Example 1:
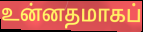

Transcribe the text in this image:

உன்னதமாகப்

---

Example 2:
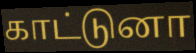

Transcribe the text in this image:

காட்டுனா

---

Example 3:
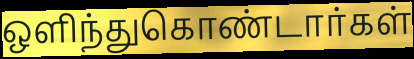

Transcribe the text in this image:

ஒளிந்துகொண்டார்கள்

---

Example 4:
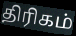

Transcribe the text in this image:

திரிகம்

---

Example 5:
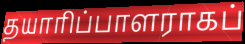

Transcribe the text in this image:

தயாரிப்பாளராகப்